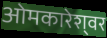
ओमकारेश्वर